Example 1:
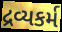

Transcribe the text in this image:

દ્રવ્યકર્મ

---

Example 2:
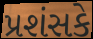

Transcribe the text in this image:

પ્રશંસકે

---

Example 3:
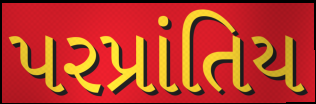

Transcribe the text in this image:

પરપ્રાંતિય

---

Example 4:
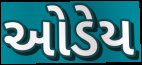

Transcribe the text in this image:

ઓડેય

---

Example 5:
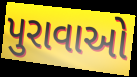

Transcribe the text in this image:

પુરાવાઓ